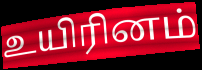
உயிரினம்